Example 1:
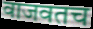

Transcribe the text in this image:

वाजवतच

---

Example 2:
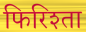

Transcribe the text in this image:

फिरिश्ता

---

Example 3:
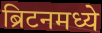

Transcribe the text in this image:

ब्रिटनमध्ये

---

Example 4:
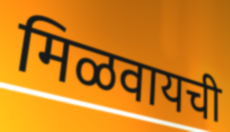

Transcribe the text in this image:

मिळवायची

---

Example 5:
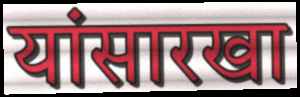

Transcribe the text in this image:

यांसारखा